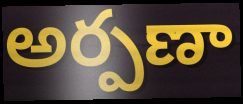
అర్పణా